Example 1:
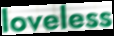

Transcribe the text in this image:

loveless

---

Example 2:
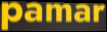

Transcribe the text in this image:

pamar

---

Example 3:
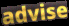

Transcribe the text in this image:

advise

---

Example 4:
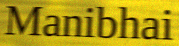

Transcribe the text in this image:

Manibhai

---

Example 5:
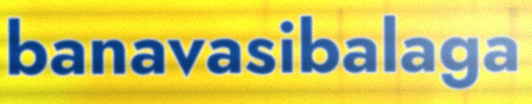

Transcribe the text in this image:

banavasibalaga